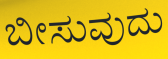
ಬೀಸುವುದು